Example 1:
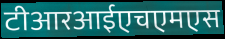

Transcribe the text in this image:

टीआरआईएचएमएस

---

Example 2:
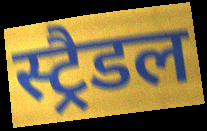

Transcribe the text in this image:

स्ट्रैडल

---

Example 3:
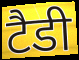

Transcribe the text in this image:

टैडी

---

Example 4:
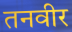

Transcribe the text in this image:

तनवीर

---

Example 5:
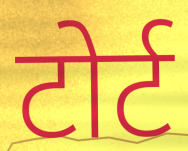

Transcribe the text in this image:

टोर्ट